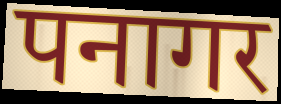
पनागर